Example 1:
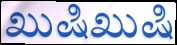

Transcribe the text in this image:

ಖುಷಿಖುಷಿ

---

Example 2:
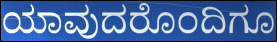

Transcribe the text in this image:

ಯಾವುದರೊಂದಿಗೂ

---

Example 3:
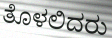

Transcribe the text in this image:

ತೊಳಲಿದರು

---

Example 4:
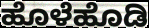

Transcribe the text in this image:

ಹೊಳೆಹೊಡಿ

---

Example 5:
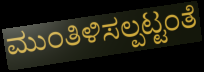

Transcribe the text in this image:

ಮುಂತಿಳಿಸಲ್ಪಟ್ಟಂತೆ